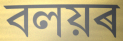
বলয়ৰ